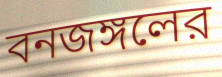
বনজঙ্গলের